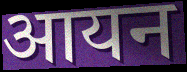
आयन